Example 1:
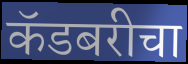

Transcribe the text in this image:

कॅडबरीचा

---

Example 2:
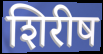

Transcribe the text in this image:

शिरीष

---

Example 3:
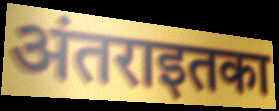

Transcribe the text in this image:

अंतराइतका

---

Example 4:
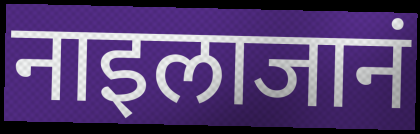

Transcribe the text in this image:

नाइलाजानं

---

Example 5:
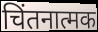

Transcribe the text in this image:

चिंतनात्मक